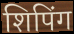
शिपिंग